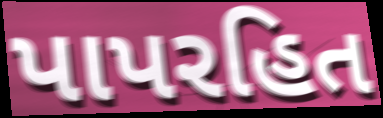
પાપરહિત